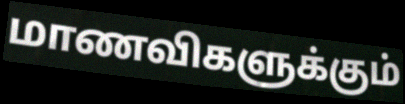
மாணவிகளுக்கும்